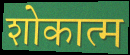
शोकात्म